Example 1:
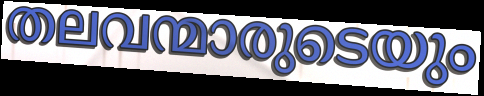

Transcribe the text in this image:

തലവന്മാരുടെയും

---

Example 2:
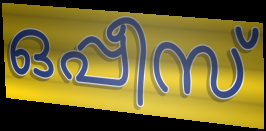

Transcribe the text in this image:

ഒപ്പീസ്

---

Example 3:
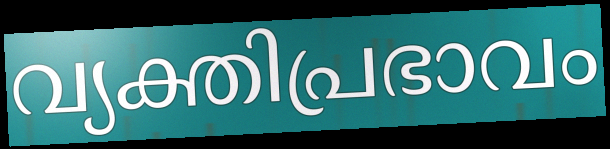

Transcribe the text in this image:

വ്യക്തിപ്രഭാവം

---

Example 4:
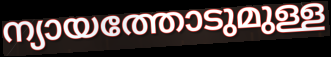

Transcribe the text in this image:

ന്യായത്തോടുമുള്ള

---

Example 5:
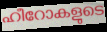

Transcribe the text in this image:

ഹീറോകളുടെ